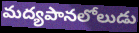
మద్యపానలోలుడు